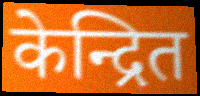
केन्द्रित